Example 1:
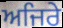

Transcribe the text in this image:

ਅਜਿਰੇ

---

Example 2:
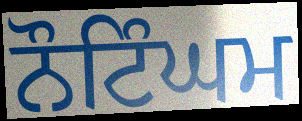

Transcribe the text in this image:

ਨੌਟਿੰਘਮ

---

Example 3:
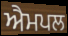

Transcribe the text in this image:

ਐਮਪਲ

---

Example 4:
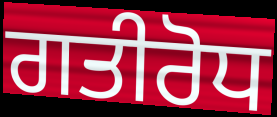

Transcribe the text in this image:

ਗਤੀਰੋਧ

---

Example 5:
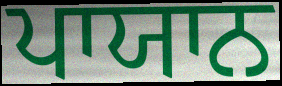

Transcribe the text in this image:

ਪਾਯਾਨ